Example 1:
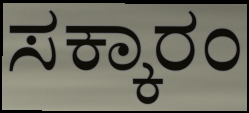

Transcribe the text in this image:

ಸಕ್ಕಾರಂ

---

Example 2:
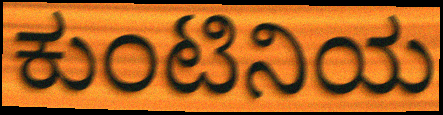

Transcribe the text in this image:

ಕುಂಟಿನಿಯ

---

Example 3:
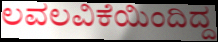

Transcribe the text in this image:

ಲವಲವಿಕೆಯಿಂದಿದ್ದ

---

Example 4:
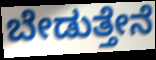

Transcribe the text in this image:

ಬೇಡುತ್ತೇನೆ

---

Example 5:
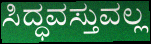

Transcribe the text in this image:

ಸಿದ್ಧವಸ್ತುವಲ್ಲ